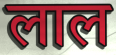
लाल